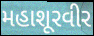
મહાશૂરવીર